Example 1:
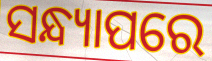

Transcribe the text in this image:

ସନ୍ଧ୍ୟାପରେ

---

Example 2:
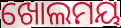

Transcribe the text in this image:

ଖୋଲମୟ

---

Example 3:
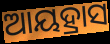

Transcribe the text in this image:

ଆୟହ୍ରାସ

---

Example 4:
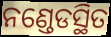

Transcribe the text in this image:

ନଣ୍ଡେଡସ୍ଥିତ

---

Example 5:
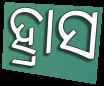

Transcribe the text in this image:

ହ୍ରାସ